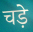
चड़े